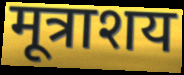
मूत्राशय